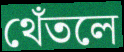
থেঁতলে